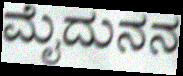
ಮೈದುನನ